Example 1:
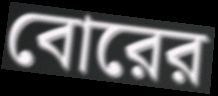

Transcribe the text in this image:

বোরের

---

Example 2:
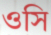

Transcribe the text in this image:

ওসি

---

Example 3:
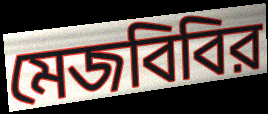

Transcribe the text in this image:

মেজবিবির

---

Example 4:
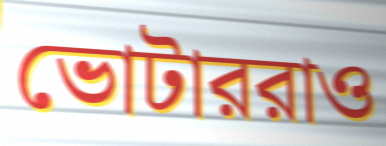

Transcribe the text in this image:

ভোটাররাও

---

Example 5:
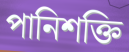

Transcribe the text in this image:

পানিশক্তি